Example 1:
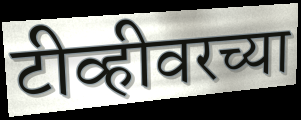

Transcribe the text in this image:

टीव्हीवरच्या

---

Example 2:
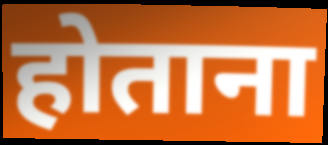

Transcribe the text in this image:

होताना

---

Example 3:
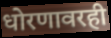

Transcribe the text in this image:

धोरणावरही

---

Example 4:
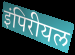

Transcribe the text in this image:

इंपिरीयल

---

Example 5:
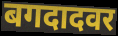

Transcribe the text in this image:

बगदादवर